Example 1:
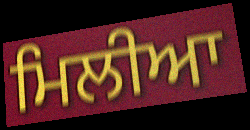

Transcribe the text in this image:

ਮਿਲੀਆ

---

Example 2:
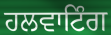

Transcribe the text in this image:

ਹਲਵਾਟਿੰਗ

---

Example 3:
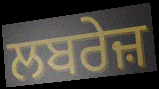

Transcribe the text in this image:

ਲਬਰੇਜ਼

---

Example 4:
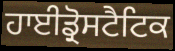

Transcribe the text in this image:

ਹਾਈਡ੍ਰੋਸਟੈਟਿਕ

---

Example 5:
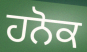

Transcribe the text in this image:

ਹਨੋਕ